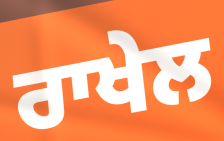
ਰਾਖੇਲ